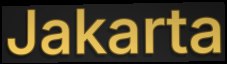
Jakarta